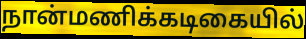
நான்மணிக்கடிகையில்